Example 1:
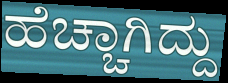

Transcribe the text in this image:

ಹೆಚ್ಚಾಗಿದ್ದು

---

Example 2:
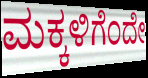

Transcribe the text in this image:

ಮಕ್ಕಳಿಗೆಂದೇ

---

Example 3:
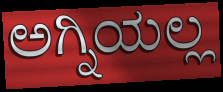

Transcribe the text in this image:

ಅಗ್ನಿಯಲ್ಲ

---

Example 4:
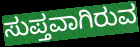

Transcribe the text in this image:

ಸುಪ್ತವಾಗಿರುವ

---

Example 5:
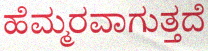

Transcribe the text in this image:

ಹೆಮ್ಮರವಾಗುತ್ತದೆ